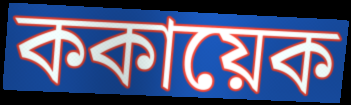
ককায়েক